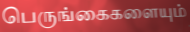
பெருங்கைகளையும்